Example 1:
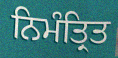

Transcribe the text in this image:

ਨਿਮੰਤ੍ਰਿਤ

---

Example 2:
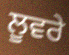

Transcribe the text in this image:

ਲੂਵਰੇ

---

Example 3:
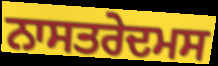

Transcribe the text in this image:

ਨਾਸਤਰੇਦਮਸ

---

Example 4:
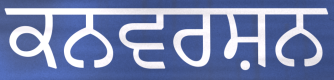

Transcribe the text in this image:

ਕਨਵਰਸ਼ਨ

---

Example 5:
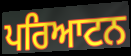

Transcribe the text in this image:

ਪਰਿਆਟਨ